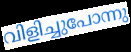
വിളിച്ചുപോന്നു